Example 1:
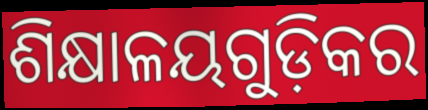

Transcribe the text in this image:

ଶିକ୍ଷାଳୟଗୁଡ଼ିକର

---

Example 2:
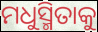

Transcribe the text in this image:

ମଧୁସ୍ମିତାକୁ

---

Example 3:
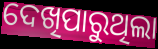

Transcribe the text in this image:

ଦେଖିପାରୁଥିଲା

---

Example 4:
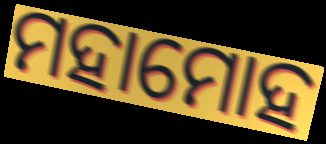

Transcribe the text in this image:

ମହାମୋହ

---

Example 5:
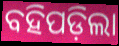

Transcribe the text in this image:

ବହିପଡ଼ିଲା